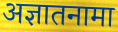
अज्ञातनामा